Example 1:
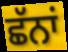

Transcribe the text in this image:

ਛੱਨਾਂ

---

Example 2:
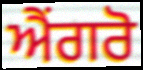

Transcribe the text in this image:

ਐਂਗਰੋ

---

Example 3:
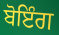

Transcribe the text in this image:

ਬੋਇੰਗ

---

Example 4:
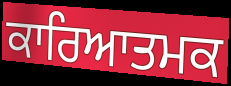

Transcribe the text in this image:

ਕਾਰਿਆਤਮਕ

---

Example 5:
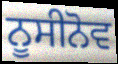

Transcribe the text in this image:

ਨੂਸੀਨੋਵ